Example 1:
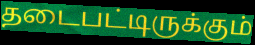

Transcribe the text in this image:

தடைபட்டிருக்கும்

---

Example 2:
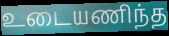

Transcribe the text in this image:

உடையணிந்த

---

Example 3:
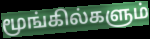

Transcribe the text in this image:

மூங்கில்களும்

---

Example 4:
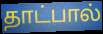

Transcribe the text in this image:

தாட்பால்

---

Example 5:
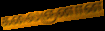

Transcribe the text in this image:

கலைஞனான